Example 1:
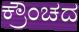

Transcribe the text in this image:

ಕ್ರೌಂಚದ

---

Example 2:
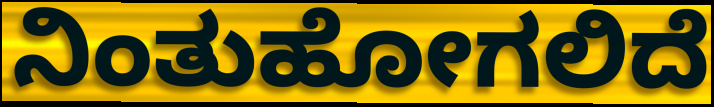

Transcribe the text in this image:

ನಿಂತುಹೋಗಲಿದೆ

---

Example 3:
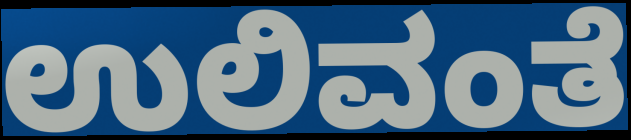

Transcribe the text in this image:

ಉಲಿವಂತೆ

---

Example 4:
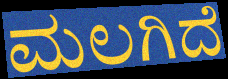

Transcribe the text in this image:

ಮಲಗಿದೆ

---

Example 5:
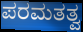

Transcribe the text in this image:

ಪರಮತತ್ವ